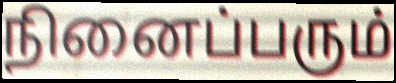
நினைப்பரும்